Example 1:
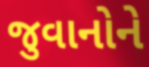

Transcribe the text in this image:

જુવાનોને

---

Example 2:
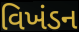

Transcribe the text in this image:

વિખંડન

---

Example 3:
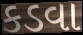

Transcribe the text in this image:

કડવા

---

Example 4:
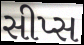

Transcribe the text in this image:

સીપ્સ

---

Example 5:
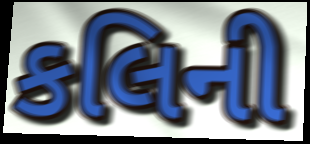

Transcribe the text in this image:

કલિની